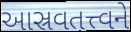
આસ્રવતત્ત્વને